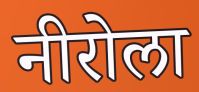
नीरोला